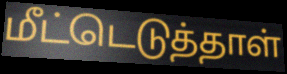
மீட்டெடுத்தாள்